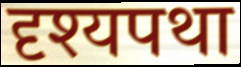
दृश्यपथा